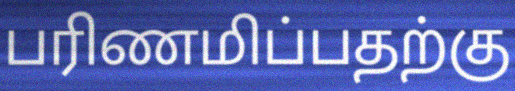
பரிணமிப்பதற்கு